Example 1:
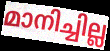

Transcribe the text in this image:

മാനിച്ചില്ല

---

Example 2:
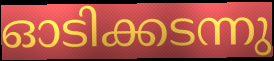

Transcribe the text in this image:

ഓടിക്കടന്നു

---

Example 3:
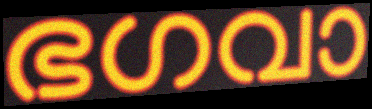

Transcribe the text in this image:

ഭഗവാ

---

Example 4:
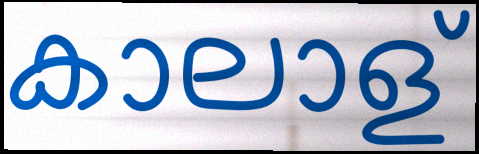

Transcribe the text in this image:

കാലാള്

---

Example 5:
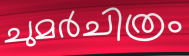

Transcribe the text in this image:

ചുമർചിത്രം